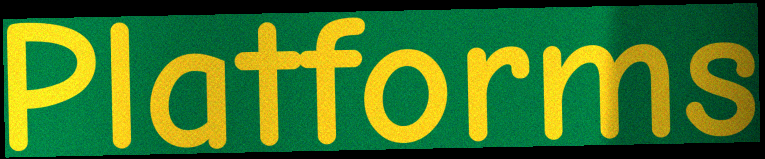
Platforms